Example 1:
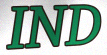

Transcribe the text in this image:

IND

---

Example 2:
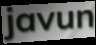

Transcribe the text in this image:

javun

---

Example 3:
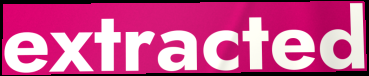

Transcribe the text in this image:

extracted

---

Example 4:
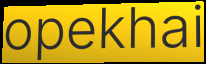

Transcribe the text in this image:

opekhai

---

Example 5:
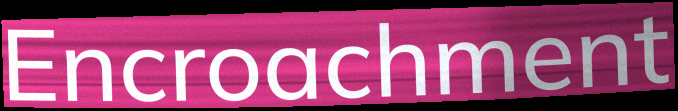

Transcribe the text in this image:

Encroachment